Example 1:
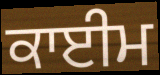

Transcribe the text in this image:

ਕਾਈਮ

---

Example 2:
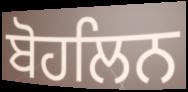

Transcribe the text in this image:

ਬੋਹਲਿਨ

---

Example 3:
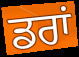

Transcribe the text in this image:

ਡਰਾਂ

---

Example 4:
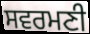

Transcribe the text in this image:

ਸਵਰਮਣੀ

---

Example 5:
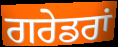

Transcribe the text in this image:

ਗਰੇਡਰਾਂ